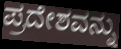
ಪ್ರದೇಶವನ್ನು